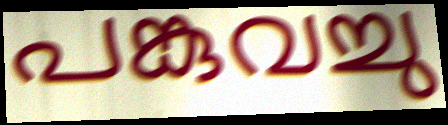
പങ്കുവച്ചു